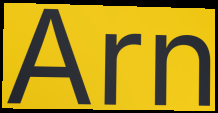
Arn